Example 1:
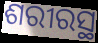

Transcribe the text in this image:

ଶରୀରସ୍ଥ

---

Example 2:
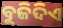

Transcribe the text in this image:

ବୁଜିଦିଏ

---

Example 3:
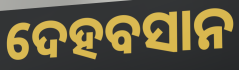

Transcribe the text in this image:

ଦେହବସାନ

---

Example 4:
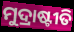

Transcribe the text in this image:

ମୁଦ୍ରାଷ୍ଟୀତି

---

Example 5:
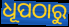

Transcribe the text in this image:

ଧୂପଠାରୁ